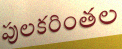
పులకరింతల